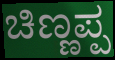
ಚಿಣ್ಣಪ್ಪ